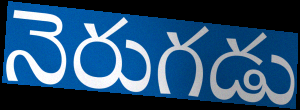
నెరుగడు